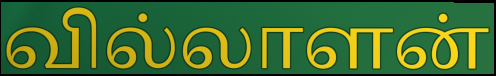
வில்லாளன்